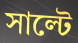
সাল্টে